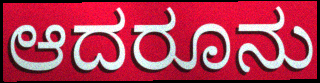
ಆದರೂನು